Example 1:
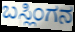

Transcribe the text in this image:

ಬಸ್ಲಿಂಗನ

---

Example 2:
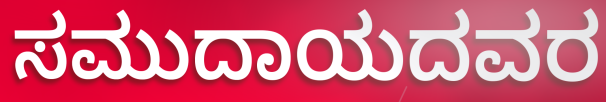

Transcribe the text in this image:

ಸಮುದಾಯದವರ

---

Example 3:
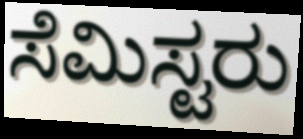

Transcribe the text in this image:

ಸೆಮಿಸ್ಟರು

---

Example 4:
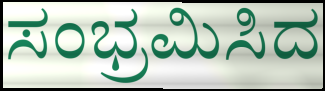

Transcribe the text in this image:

ಸಂಭ್ರಮಿಸಿದ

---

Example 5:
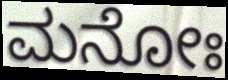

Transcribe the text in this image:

ಮನೋಃ